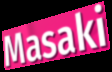
Masaki